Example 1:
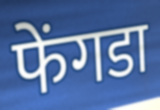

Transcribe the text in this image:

फेंगडा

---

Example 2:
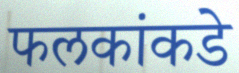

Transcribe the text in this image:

फलकांकडे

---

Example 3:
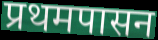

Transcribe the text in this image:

प्रथमपासन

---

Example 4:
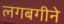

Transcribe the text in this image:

लगबगीने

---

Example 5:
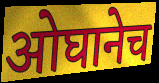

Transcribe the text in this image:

ओघानेच